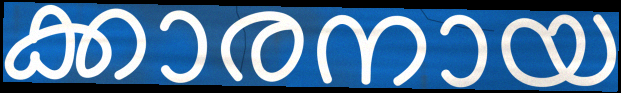
ക്കാരനായ